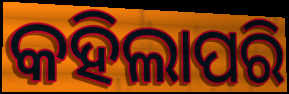
କହିଲାପରି